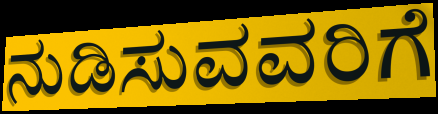
ನುಡಿಸುವವರಿಗೆ